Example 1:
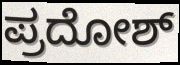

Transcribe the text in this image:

ಪ್ರದೋಶ್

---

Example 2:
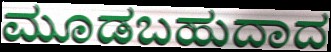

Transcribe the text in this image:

ಮೂಡಬಹುದಾದ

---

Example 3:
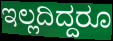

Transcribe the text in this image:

ಇಲ್ಲದಿದ್ದರೂ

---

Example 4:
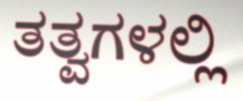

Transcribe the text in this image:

ತತ್ವಗಳಲ್ಲಿ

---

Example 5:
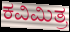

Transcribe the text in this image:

ಕವಿಮಿತ್ರ